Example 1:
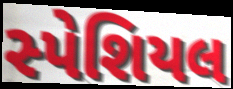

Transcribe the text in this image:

સ્પેશિયલ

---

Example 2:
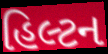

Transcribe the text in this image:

હિલ્ટન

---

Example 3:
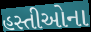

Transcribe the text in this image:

હસ્તીઓના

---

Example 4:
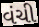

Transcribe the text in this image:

વંચી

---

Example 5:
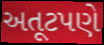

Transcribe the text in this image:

અતૂટપણે